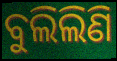
ବୁଲିଲିଣି